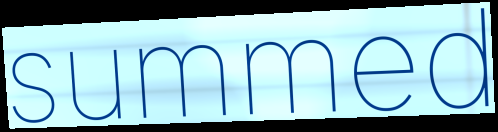
summed